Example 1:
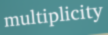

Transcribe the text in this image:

multiplicity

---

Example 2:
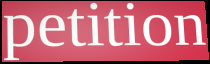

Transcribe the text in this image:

petition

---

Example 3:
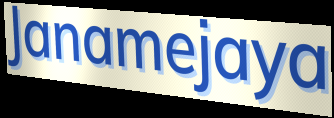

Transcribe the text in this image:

Janamejaya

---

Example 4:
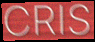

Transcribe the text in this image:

CRIS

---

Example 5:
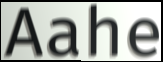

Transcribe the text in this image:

Aahe